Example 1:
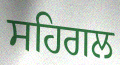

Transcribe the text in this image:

ਸਹਿਗਲ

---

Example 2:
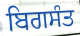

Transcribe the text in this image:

ਬਿਗਸੰਤ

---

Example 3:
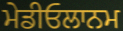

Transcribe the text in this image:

ਮੇਡੀਓਲਾਨਮ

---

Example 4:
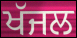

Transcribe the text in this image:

ਖੱਜਲ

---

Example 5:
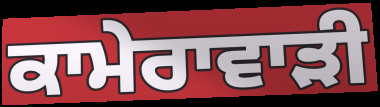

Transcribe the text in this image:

ਕਾਮੇਰਾਵਾੜੀ